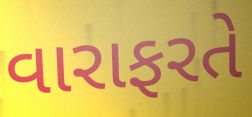
વારાફરતે